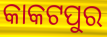
କାକଟପୁର